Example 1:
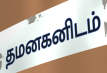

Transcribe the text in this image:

தமனகனிடம்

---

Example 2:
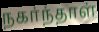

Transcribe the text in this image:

நகர்ந்தாள்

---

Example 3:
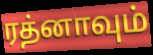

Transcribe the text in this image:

ரத்னாவும்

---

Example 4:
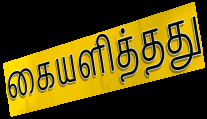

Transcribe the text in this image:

கையளித்தது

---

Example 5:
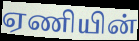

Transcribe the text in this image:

ஏணியின்